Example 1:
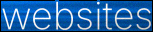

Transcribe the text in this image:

websites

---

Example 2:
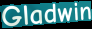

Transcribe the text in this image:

Gladwin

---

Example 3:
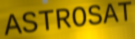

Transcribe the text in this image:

ASTROSAT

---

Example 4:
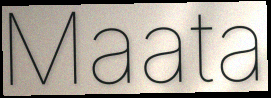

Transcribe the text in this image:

Maata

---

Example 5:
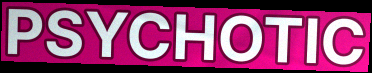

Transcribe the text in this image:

PSYCHOTIC